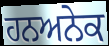
ਹਨਅਨੇਕ